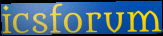
icsforum